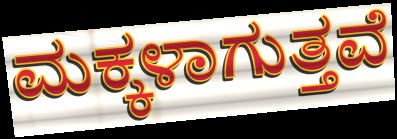
ಮಕ್ಕಳಾಗುತ್ತವೆ